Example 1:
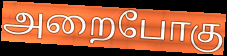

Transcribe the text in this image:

அறைபோகு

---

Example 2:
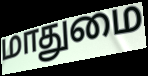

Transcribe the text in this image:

மாதுமை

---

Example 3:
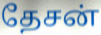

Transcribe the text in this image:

தேசன்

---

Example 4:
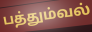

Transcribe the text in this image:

பத்தும்வல்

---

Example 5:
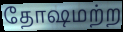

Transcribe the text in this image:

தோஷமற்ற